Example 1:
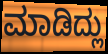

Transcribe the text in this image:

ಮಾಡಿದ್ಲು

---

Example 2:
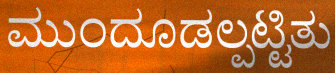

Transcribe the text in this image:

ಮುಂದೂಡಲ್ಪಟ್ಟಿತು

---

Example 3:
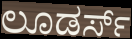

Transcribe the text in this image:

ಲೂಡರ್ಸ್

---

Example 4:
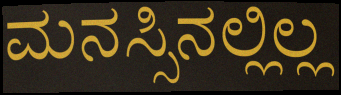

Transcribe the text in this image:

ಮನಸ್ಸಿನಲ್ಲಿಲ್ಲ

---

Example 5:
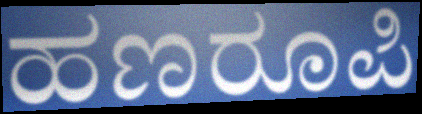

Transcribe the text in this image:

ಹಣರೂಪಿ